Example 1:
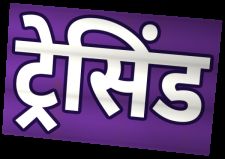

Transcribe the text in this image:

ट्रेसिंड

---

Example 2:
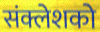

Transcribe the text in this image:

संक्लेशको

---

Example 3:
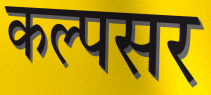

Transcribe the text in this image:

कल्पसर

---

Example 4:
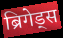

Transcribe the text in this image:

ब्रिगेड्स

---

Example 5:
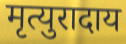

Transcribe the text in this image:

मृत्युरादाय